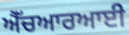
ਐੱਚਆਰਆਈ